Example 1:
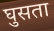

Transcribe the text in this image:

घुसता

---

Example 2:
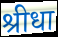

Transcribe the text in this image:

श्रीधा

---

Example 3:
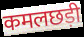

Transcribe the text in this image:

कमलछड़ी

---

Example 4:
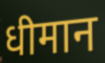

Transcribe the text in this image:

धीमान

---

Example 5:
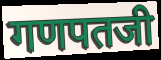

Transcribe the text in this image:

गणपतजी